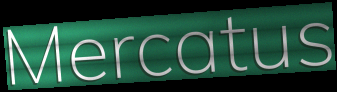
Mercatus